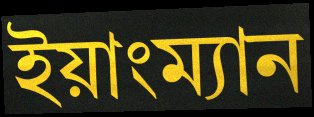
ইয়াংম্যান